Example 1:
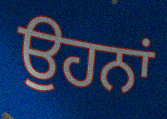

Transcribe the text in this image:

ਉਹਨਾਂ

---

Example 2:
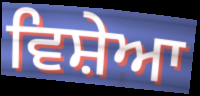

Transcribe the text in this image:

ਵਿਸ਼ੇਆ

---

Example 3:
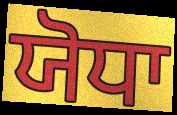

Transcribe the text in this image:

ਯੋਧਾ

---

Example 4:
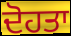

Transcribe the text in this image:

ਦੋਹਤਾ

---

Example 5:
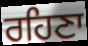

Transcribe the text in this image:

ਰਹਿਣਾ